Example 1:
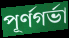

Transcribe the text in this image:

পূর্ণগর্ভা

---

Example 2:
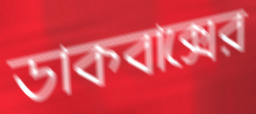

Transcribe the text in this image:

ডাকবাক্সের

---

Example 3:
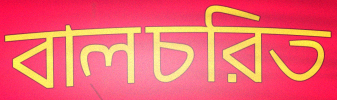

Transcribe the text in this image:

বালচরিত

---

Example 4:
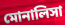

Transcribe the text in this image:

মোনালিসা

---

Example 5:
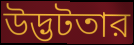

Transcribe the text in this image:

উদ্ভটতার